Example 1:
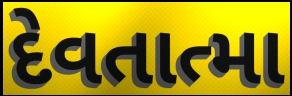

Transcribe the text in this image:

દેવતાત્મા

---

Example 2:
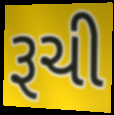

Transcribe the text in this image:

રૂચી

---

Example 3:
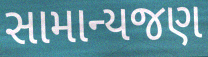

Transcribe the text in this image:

સામાન્યજણ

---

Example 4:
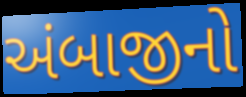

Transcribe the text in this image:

અંબાજીનો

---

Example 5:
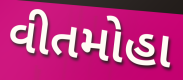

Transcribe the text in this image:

વીતમોહા